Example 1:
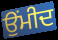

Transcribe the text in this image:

ਉਂਮੀਦ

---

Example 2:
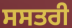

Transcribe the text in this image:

ਸਸਤਰੀ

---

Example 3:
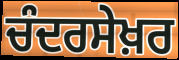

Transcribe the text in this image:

ਚੰਦਰਸੇਖ਼ਰ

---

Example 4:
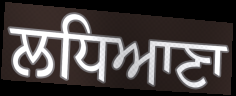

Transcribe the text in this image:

ਲਧਿਆਣਾ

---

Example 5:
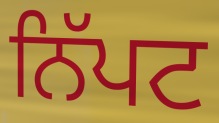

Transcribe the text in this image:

ਨਿੱਪਟ